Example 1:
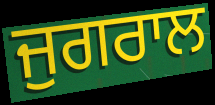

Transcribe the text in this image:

ਜੁਗਰਾਲ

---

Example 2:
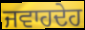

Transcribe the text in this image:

ਜਵਾਹਦੇਹ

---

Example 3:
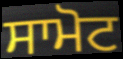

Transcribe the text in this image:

ਸਾਮੋਟ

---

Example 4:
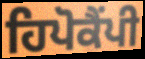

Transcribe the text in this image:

ਹਿਪੋਕੈਂਪੀ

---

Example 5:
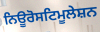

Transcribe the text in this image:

ਨਿਊਰੋਸਟਿਮੂਲੇਸ਼ਨ